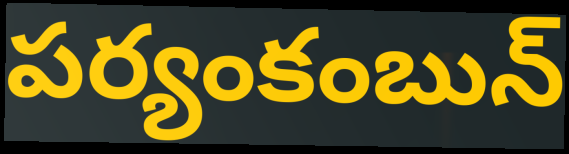
పర్యంకంబున్